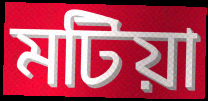
মটিয়া